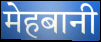
मेहबानी